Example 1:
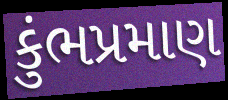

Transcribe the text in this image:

કુંભપ્રમાણ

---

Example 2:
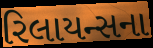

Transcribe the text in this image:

રિલાયન્સના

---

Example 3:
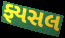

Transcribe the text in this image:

ફ્યસલ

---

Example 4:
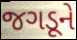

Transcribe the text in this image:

જગડૂને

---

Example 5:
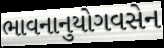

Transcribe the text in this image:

ભાવનાનુયોગવસેન